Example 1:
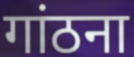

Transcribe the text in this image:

गांठना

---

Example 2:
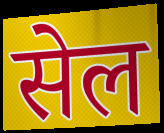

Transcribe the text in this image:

सेल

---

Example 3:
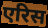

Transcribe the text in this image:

एरिस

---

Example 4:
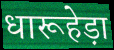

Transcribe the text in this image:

धारूहेड़ा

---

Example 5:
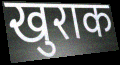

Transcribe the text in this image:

खुराक